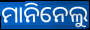
ମାନିନେଲୁ